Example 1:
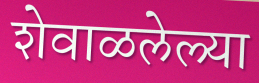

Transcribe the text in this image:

शेवाळलेल्या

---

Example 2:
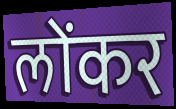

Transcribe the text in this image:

लोंकर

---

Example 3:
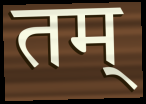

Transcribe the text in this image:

तम्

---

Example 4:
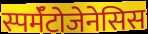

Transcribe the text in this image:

स्पर्मॅटोजेनेसिस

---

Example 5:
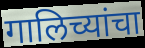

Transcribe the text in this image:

गालिच्यांचा